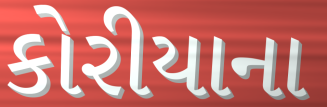
કોરીયાના